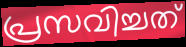
പ്രസവിച്ചത്